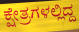
ಕ್ಷೇತ್ರಗಳಲ್ಲಿದ್ದ